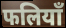
फलियाँ